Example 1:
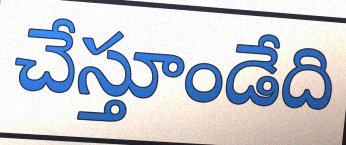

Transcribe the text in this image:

చేస్తూండేది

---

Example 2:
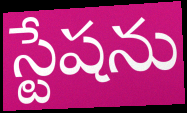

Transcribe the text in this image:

స్టేషను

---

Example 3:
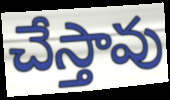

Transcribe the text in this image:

చేస్తావు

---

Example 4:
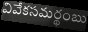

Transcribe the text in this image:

వివేకసమర్థంబు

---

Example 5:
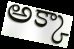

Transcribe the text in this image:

అక్కా